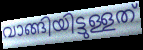
വാങ്ങിയിട്ടുള്ളത്